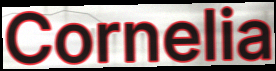
Cornelia